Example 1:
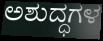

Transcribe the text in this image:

ಅಶುದ್ಧಗಳ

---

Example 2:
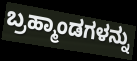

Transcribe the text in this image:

ಬ್ರಹ್ಮಾಂಡಗಳನ್ನು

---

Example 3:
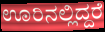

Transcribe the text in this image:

ಊರಿನಲ್ಲಿದ್ದರೆ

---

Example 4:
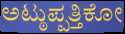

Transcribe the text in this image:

ಅಟ್ಠುಪ್ಪತ್ತಿಕೋ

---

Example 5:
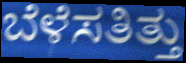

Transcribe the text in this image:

ಬೆಳೆಸತಿತ್ತು